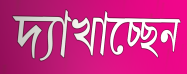
দ্যাখাচ্ছেন